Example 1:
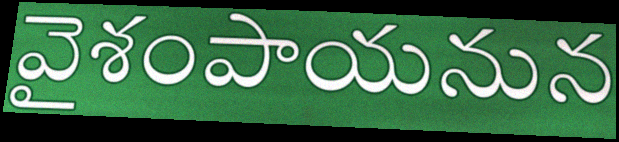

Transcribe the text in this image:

వైశంపాయనున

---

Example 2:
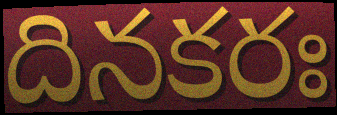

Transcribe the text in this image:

దినకరః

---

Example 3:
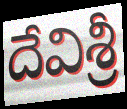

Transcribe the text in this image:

దేవిశ్రీ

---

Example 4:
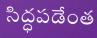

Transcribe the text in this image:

సిద్ధపడేంత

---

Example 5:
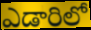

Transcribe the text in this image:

ఎడారిలో